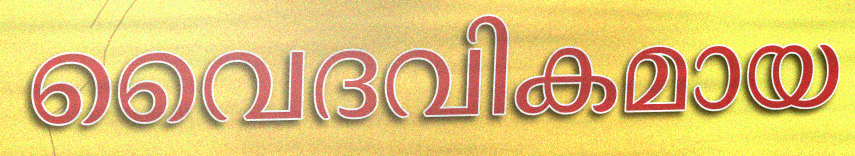
വൈദവികമായ